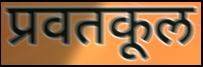
प्रवतकूल